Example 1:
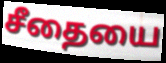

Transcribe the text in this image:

சீதையை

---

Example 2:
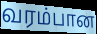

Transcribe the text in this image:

வரம்பான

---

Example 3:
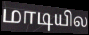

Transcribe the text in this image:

மாடியில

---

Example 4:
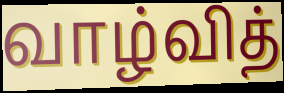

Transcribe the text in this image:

வாழ்வித்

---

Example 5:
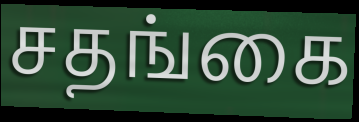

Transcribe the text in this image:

சதங்கை